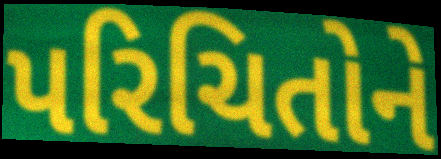
પરિચિતોને